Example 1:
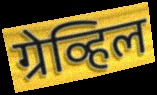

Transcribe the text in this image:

ग्रेव्हिल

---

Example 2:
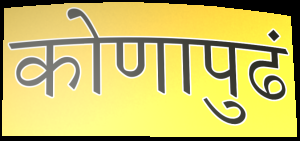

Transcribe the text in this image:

कोणापुढं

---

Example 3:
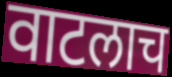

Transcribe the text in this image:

वाटलाच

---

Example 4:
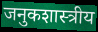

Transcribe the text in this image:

जनुकशास्त्रीय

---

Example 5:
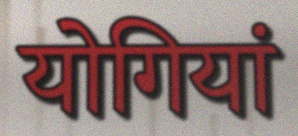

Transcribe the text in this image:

योगियां